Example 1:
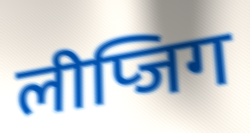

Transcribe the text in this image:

लीप्जिग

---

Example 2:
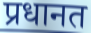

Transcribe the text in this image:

प्रधानत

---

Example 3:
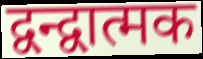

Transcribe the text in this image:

द्वन्द्वात्मक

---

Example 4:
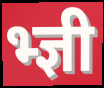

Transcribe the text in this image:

भ्ज्ञी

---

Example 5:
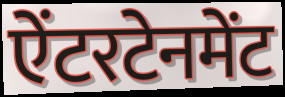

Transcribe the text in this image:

ऐंटरटेनमेंट